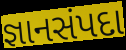
જ્ઞાનસંપદા